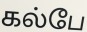
கல்பே